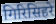
गिरिसिहरे